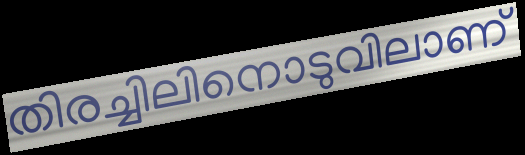
തിരച്ചിലിനൊടുവിലാണ്